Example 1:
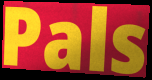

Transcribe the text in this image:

Pals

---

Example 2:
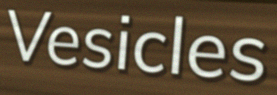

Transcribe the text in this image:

Vesicles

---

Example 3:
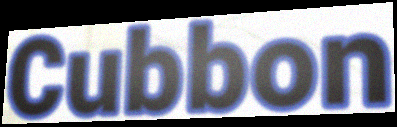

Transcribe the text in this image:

Cubbon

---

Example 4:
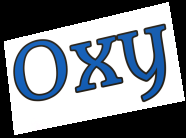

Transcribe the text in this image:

Oxy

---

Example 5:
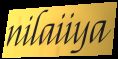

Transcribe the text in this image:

nilaiiya